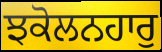
ਝਕੋਲਨਹਾਰੁ